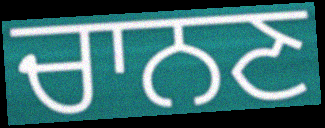
ਚਾਨਣ